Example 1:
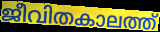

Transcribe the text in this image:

ജീവിതകാലത്ത്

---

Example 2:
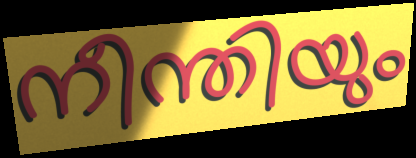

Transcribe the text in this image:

നീന്തിയും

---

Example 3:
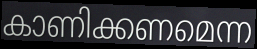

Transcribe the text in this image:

കാണിക്കണമെന്ന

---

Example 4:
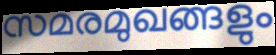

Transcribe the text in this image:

സമരമുഖങ്ങളും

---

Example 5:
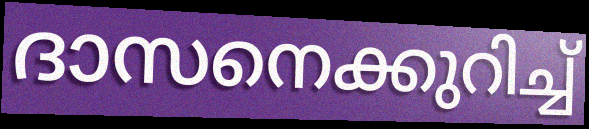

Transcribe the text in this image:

ദാസനെക്കുറിച്ച്